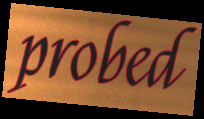
probed